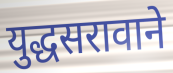
युद्धसरावाने